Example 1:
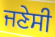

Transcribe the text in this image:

ਜਣੇਸੀ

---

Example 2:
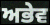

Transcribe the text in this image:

ਅਭੇਵ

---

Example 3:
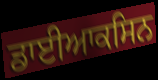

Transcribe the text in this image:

ਡਾਈਆਕਸਿਨ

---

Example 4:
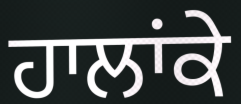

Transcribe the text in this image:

ਹਾਲਾਂਕੇ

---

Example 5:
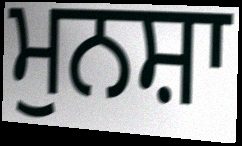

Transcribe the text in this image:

ਮੁਨਸ਼ਾ